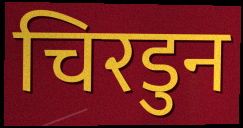
चिरडुन